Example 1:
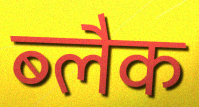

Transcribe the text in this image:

ब्‍लैक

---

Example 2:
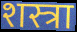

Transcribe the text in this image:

शस्त्रा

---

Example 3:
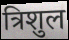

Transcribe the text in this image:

त्रिशुल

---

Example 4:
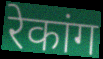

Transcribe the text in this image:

रेकांग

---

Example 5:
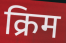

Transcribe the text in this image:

क्रिम